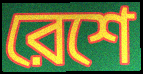
রেশে